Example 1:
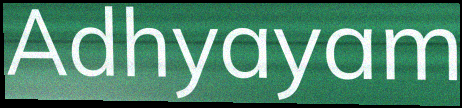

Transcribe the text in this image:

Adhyayam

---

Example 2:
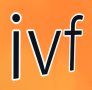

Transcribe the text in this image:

ivf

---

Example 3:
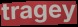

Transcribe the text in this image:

tragey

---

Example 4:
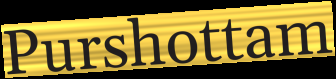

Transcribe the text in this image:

Purshottam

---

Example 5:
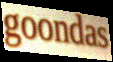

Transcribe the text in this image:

goondas